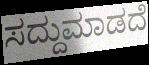
ಸದ್ದುಮಾಡದೆ